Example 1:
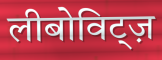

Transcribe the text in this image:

लीबोविट्ज़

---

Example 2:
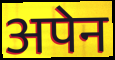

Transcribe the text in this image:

अपेन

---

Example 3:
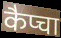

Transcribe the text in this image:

कैप्चा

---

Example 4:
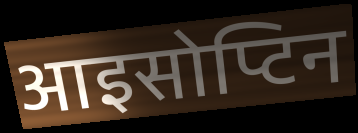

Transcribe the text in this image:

आइसोप्टिन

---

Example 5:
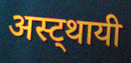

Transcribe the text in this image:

अस्ट्थायी